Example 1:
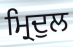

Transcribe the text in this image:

ਮ੍ਰਿਦੁਲ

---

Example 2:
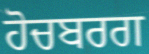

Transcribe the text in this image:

ਹੋਚਬਰਗ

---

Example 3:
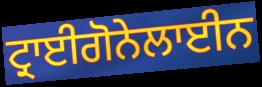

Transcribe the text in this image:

ਟ੍ਰਾਈਗੋਨੇਲਾਈਨ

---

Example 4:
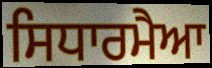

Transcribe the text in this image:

ਸਿਧਾਰਮੈਆ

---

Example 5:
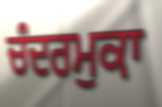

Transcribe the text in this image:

ਚੰਦਰਮੁਕਾ